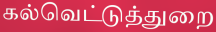
கல்வெட்டுத்துறை